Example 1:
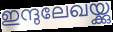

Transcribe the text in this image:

ഇന്ദുലേഖയ്ക്കു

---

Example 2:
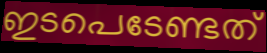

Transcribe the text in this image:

ഇടപെടേണ്ടത്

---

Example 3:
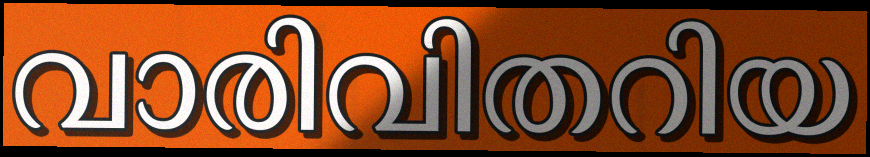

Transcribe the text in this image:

വാരിവിതറിയ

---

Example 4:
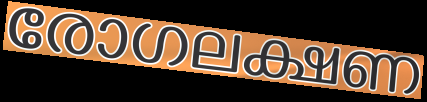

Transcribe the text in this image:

രോഗലക്ഷണ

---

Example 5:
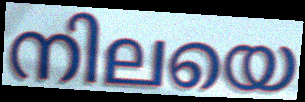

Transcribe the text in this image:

നിലയെ